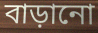
বাড়ানো